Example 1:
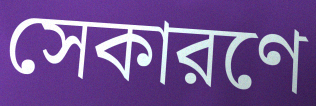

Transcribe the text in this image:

সেকারণে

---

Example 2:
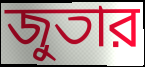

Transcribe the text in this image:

জুতার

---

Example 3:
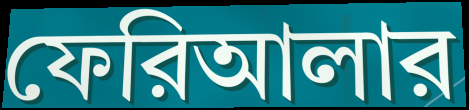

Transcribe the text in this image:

ফেরিআলার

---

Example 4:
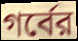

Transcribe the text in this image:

গর্বের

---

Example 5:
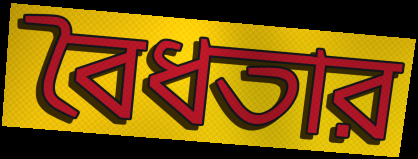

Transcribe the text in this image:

বৈধতার